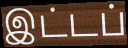
இட்டப்